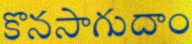
కొనసాగుదాం